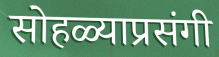
सोहळ्याप्रसंगी